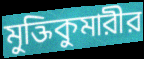
মুক্তিকুমারীর